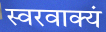
स्वरवाक्यं